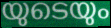
യുടെയും